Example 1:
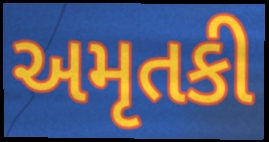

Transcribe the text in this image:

અમૃતકી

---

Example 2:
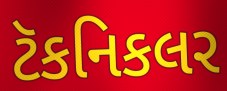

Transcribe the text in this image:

ટૅકનિકલર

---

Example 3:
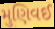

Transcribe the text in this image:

મુણિવઈ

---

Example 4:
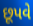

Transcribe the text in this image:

છૂપવે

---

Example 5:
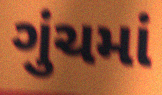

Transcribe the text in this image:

ગુંચમાં